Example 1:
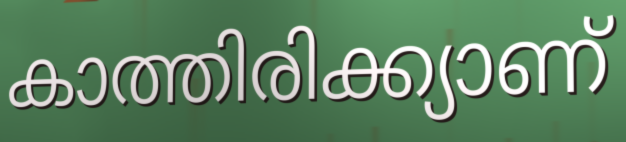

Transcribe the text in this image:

കാത്തിരിക്ക്യാണ്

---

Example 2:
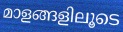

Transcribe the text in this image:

മാളങ്ങളിലൂടെ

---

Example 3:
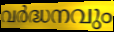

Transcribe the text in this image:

വർദ്ധനവും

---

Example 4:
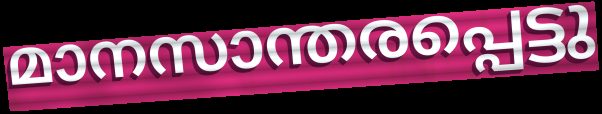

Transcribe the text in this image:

മാനസാന്തരപ്പെട്ടു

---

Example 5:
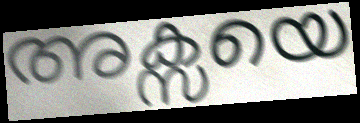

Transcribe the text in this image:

അക്സയെ